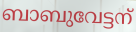
ബാബുവേട്ടന്